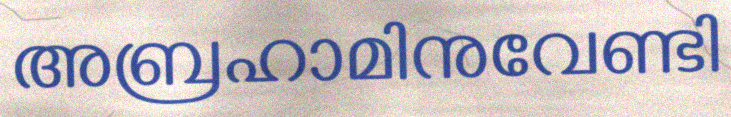
അബ്രഹാമിനുവേണ്ടി